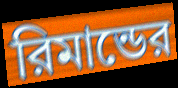
রিমান্ডের